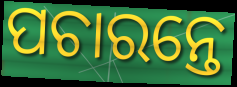
ପଚାରନ୍ତେ